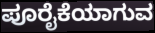
ಪೂರೈಕೆಯಾಗುವ